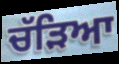
ਚੱੜਿਆ